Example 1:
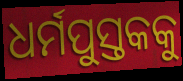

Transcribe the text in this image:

ଧର୍ମପୁସ୍ତକକୁ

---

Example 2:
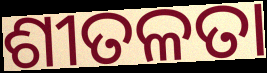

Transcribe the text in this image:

ଶୀତଳତା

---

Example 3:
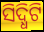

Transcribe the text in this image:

ସିଦ୍ଧିଟି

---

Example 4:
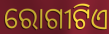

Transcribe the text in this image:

ରୋଗୀଟିଏ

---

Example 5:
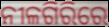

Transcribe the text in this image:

ନୀଳଗିରିରେ